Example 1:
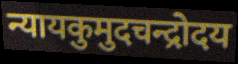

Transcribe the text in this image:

न्यायकुमुदचन्द्रोदय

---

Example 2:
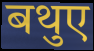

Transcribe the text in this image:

बथुए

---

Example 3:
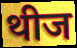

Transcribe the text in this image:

थीज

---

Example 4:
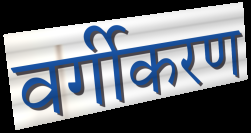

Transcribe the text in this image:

वर्गीकरण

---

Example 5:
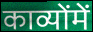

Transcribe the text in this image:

काव्योंमें